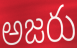
అజరు